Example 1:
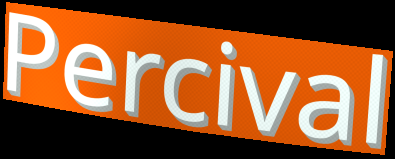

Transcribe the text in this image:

Percival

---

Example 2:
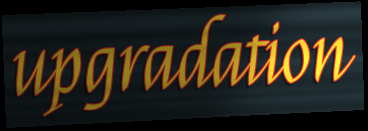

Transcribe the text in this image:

upgradation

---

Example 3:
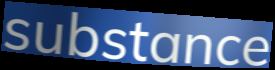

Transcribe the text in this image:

substance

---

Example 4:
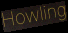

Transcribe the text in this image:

Howling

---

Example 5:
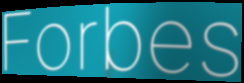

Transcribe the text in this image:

Forbes